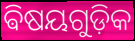
ଵିଷୟଗୁଡ଼ିକ